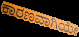
ಕಾರಣವಾಗಿಯೇ